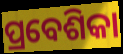
ପ୍ରବେଶିକା